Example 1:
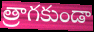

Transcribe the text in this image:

త్రాగకుండా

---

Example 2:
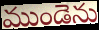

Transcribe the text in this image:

ముండెను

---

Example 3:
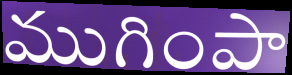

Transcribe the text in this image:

ముగింపా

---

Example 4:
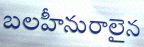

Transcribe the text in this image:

బలహీనురాలైన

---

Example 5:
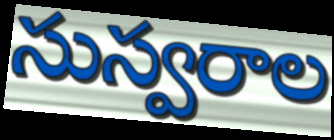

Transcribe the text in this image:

సుస్వరాల